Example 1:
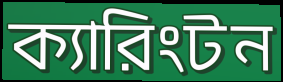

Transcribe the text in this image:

ক্যারিংটন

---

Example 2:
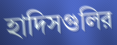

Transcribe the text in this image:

হাদিসগুলির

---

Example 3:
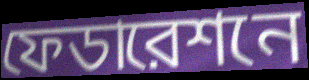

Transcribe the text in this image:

ফেডারেশনে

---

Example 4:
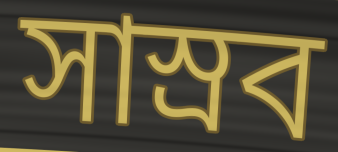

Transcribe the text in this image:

সাস্রব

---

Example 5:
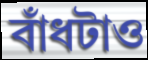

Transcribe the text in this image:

বাঁধটাও